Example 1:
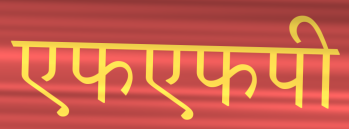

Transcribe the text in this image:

एफएफपी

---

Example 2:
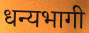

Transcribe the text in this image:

धन्यभागी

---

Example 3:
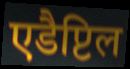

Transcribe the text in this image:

एडैप्टिल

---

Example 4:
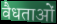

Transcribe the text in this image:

वैधताओं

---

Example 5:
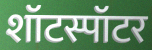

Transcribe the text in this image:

शॉटस्पॉटर